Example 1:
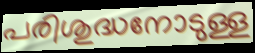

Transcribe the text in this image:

പരിശുദ്ധനോടുള്ള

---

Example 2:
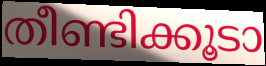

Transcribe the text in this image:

തീണ്ടിക്കൂടാ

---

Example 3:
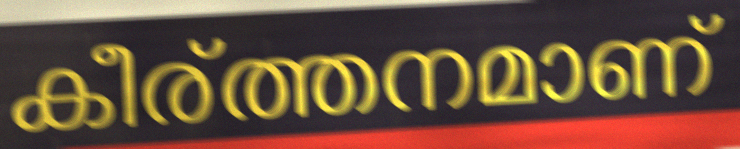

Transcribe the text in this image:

കീര്ത്തനമാണ്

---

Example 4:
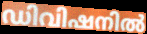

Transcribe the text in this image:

ഡിവിഷനിൽ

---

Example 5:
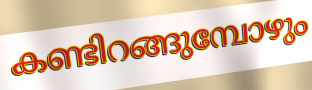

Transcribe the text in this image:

കണ്ടിറങ്ങുമ്പോഴും